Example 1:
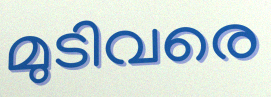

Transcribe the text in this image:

മുടിവരെ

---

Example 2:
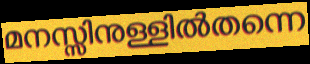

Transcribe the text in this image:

മനസ്സിനുള്ളിൽതന്നെ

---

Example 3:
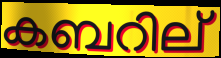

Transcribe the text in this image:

കബറില്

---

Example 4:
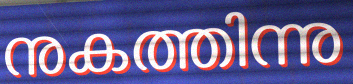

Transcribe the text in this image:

നുകത്തിന്നു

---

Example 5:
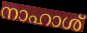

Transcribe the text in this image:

നാഹാശ്